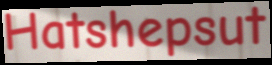
Hatshepsut